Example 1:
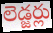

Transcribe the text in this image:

లెడ్జర్లు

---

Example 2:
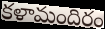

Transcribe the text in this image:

కళామందిరం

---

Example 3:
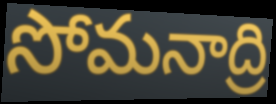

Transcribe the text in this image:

సోమనాద్రి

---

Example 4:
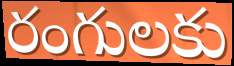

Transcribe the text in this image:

రంగులకు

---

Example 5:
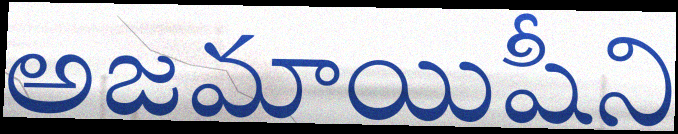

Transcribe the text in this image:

అజమాయిషీని